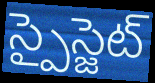
స్పైస్జెట్